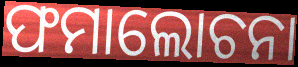
ଫମାଲୋଚନା